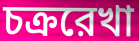
চক্ররেখা